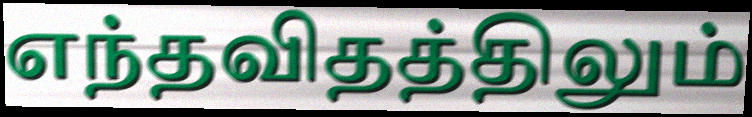
எந்தவிதத்திலும்